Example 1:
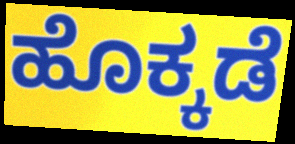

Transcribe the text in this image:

ಹೊಕ್ಕಡೆ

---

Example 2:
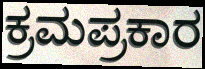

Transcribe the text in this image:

ಕ್ರಮಪ್ರಕಾರ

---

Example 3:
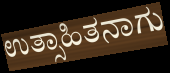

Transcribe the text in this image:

ಉತ್ಸಾಹಿತನಾಗು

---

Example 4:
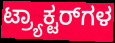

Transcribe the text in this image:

ಟ್ರ್ಯಾಕ್ಟರ್‌ಗಳ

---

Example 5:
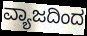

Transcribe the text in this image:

ವ್ಯಾಜದಿಂದ